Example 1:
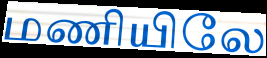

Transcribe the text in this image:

மணியிலே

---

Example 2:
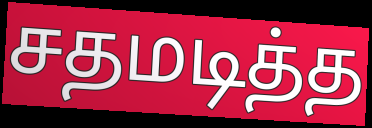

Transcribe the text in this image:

சதமடித்த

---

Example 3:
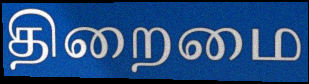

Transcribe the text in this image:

திறைமை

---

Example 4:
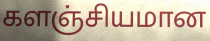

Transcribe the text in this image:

களஞ்சியமான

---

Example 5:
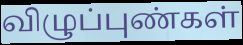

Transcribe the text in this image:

விழுப்புண்கள்